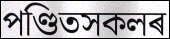
পণ্ডিতসকলৰ